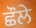
ਛੌਲੇ